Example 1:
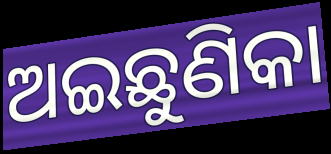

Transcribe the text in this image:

ଅଇଛୁଣିକା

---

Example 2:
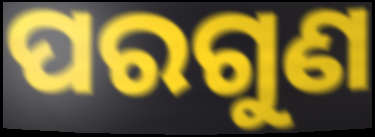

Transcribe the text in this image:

ପରଗୁଣ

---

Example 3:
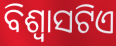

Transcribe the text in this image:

ବିଶ୍ଵାସଟିଏ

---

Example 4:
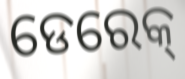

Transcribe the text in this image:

ଡେରେକ୍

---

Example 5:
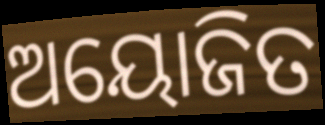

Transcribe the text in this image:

ଅୟୋଜିତ